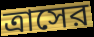
ত্রাসের